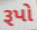
રૂપો